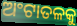
ଅଂଟାତଳକୁ